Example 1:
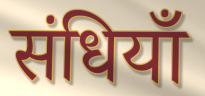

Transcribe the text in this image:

संधियाँ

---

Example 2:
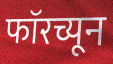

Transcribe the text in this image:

फॉरच्यून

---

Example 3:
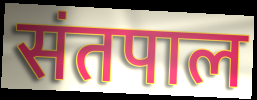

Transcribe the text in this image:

संतपाल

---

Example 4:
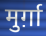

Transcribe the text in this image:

मुर्ग़ा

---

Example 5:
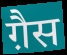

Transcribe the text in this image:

ग़ैस